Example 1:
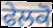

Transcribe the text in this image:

ਫੇਲਕੋ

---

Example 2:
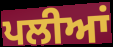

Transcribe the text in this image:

ਪਲੀਆਂ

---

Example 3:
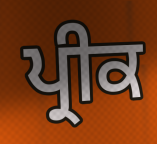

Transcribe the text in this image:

ਪ੍ਰੀਕ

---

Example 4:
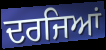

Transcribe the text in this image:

ਦਰਜਿਆਂ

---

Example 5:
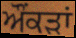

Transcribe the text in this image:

ਔਂਕੜਾਂ